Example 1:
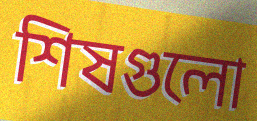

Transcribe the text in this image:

শিষগুলো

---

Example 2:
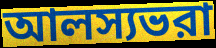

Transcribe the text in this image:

আলস্যভরা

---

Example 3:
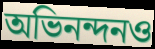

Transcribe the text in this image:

অভিনন্দনও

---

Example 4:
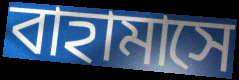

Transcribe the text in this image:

বাহামাসে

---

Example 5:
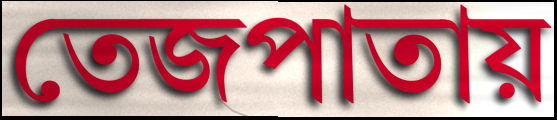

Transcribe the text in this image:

তেজপাতায়